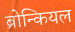
ब्रोन्कियल